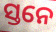
ସ୍ତନେ